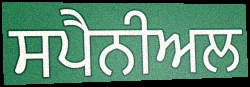
ਸਪੈਨੀਅਲ